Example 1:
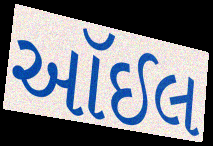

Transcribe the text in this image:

આૅઈલ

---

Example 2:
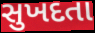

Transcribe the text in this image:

સુખદતા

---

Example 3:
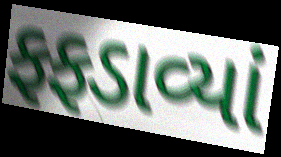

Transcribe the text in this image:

ફફડાવ્યાં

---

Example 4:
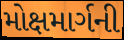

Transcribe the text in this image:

મોક્ષમાર્ગની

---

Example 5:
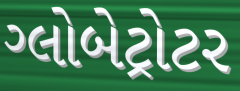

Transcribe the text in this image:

ગ્લોબેટ્રોટર